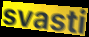
svasti